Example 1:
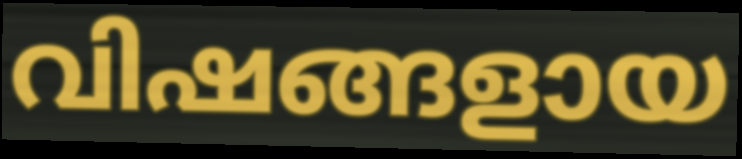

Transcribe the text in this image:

വിഷങ്ങളായ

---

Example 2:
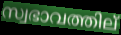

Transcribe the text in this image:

സ്വഭാവത്തില്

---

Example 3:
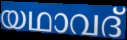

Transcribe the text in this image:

യഥാവദ്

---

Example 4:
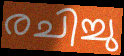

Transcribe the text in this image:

രചിച്ചു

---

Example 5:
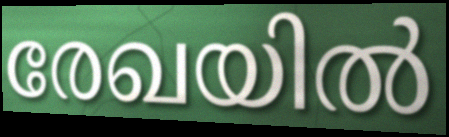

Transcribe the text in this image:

രേഖയിൽ